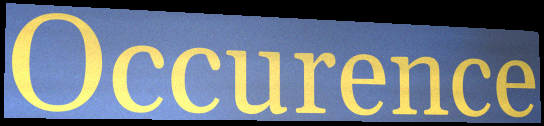
Occurence